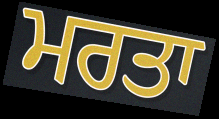
ਮਰਤਾ